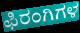
ಫಿರಂಗಿಗಳ